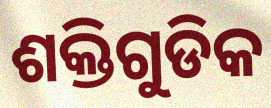
ଶକ୍ତିଗୁଡିକ